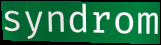
syndrom